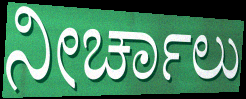
ನೀರ್ಚಾಲು